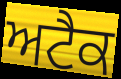
ਅਟੈਕ